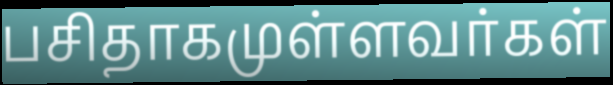
பசிதாகமுள்ளவர்கள்